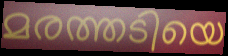
മരത്തടിയെ